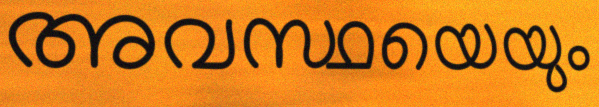
അവസ്ഥയെയും